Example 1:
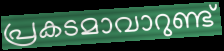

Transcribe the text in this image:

പ്രകടമാവാറുണ്ട്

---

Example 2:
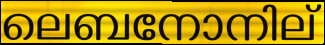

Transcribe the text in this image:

ലെബനോനില്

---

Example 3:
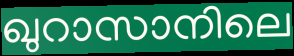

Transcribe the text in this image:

ഖുറാസാനിലെ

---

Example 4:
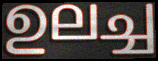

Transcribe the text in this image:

ഉലച്ച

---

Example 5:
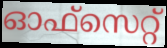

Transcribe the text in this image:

ഓഫ്സെറ്റ്